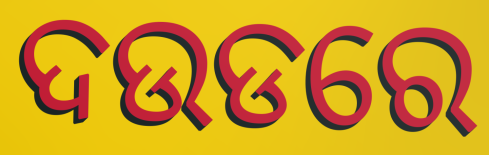
ଦଉଡରେ